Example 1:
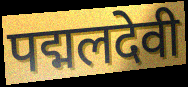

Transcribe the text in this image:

पद्मलदेवी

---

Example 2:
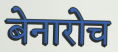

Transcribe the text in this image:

बेनारोच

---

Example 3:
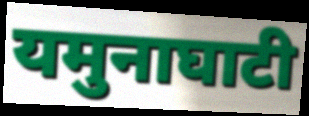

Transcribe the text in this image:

यमुनाघाटी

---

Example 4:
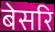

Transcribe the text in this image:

बेसरि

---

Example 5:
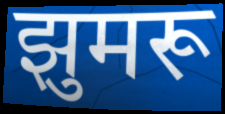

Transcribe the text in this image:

झुमरू